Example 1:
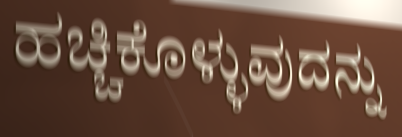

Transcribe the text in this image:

ಹಚ್ಚಿಕೊಳ್ಳುವುದನ್ನು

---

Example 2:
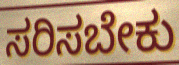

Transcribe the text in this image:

ಸರಿಸಬೇಕು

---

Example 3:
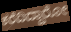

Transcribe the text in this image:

ಕರೆದಿದ್ದಾರೋ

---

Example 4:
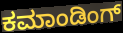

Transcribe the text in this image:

ಕಮಾಂಡಿಂಗ್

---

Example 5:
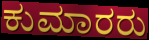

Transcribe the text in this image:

ಕುಮಾರರು